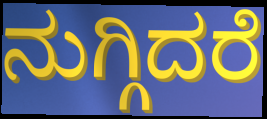
ನುಗ್ಗಿದರೆ